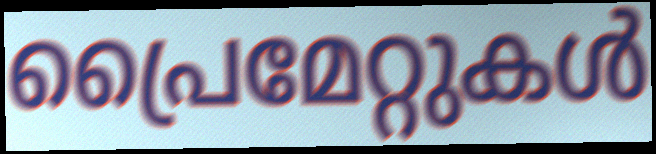
പ്രൈമേറ്റുകൾ